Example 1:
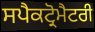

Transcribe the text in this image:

ਸਪੈਕਟ੍ਰੋਮੈਟਰੀ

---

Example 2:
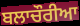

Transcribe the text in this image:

ਬਲਾਚੌਰੀਆ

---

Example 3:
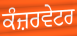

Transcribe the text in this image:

ਕੰਜ਼ਰਵੇਟਰ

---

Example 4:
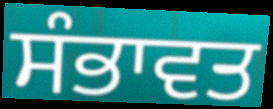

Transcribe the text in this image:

ਸੰਭਾਵਤ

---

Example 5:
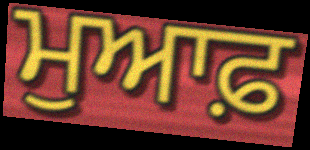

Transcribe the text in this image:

ਮੁਆਫ਼